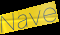
Nave